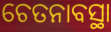
ଚେତନାବସ୍ଥା